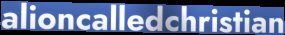
alioncalledchristian